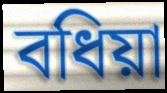
বধিয়া